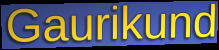
Gaurikund